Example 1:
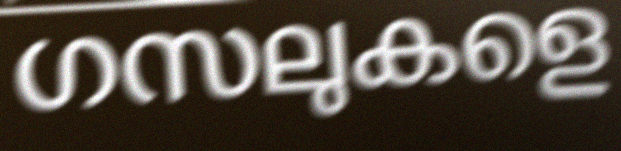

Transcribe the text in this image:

ഗസലുകളെ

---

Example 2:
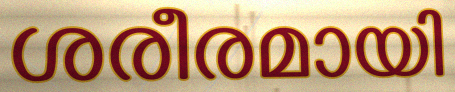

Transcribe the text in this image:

ശരീരമായി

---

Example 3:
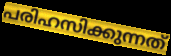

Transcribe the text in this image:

പരിഹസിക്കുന്നത്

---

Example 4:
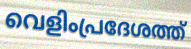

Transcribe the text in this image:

വെളിംപ്രദേശത്ത്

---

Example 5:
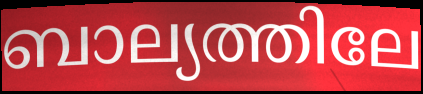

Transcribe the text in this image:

ബാല്യത്തിലേ